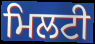
ਮਿਲਟੀ